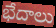
భేదాలు